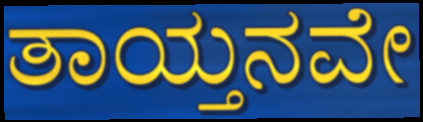
ತಾಯ್ತನವೇ